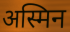
अस्मिन